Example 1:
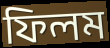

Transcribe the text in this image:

ফিলম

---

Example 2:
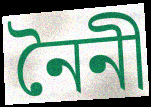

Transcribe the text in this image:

নৈনী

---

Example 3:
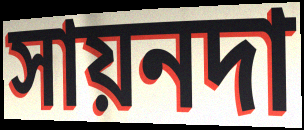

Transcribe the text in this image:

সায়নদা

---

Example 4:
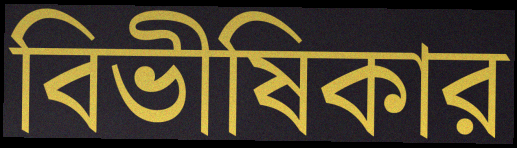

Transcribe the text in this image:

বিভীষিকার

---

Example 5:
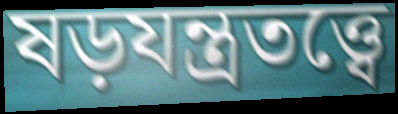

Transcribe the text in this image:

ষড়যন্ত্রতত্ত্বে